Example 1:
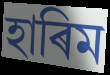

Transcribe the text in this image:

হাৰিম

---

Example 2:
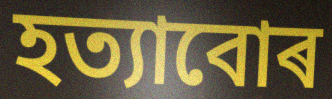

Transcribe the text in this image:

হত্যাবোৰ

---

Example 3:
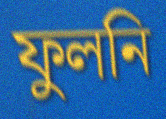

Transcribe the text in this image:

ফুলনি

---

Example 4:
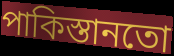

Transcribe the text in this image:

পাকিস্তানতো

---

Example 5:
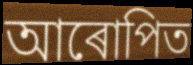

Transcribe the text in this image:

আৰোপিত